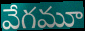
వేగమూ